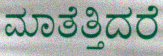
ಮಾತೆತ್ತಿದರೆ